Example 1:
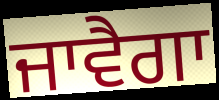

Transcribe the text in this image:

ਜਾਵੈਗਾ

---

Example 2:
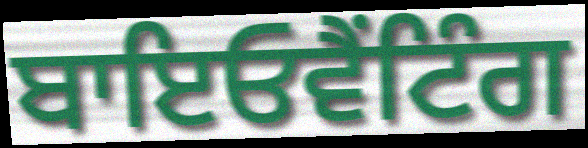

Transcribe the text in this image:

ਬਾਇਓਵੈਂਟਿੰਗ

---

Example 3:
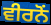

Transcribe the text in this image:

ਵੀਰਨੋਂ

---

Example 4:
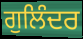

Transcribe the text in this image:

ਗੁਲਿੰਦਰ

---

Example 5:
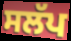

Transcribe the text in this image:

ਸਲੱਪ